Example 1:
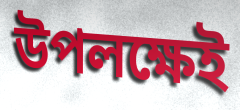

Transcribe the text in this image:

উপলক্ষেই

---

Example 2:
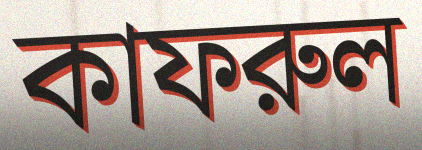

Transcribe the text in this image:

কাফরুল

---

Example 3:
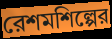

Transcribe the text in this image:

রেশমশিল্পের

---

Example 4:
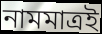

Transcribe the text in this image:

নামমাত্রই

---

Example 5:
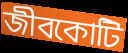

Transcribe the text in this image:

জীবকোটি